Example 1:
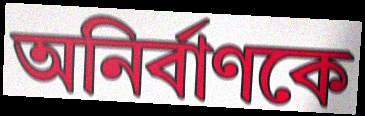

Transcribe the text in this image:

অনির্বাণকে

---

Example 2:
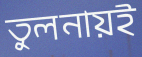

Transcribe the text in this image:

তুলনায়ই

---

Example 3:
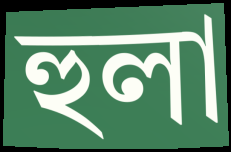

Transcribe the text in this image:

হুলা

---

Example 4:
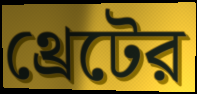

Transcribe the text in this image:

থ্রেটের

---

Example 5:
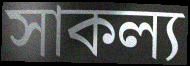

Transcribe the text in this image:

সাকল্য